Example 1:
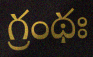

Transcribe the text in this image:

గ్రంథః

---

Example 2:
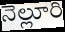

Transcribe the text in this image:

నెల్లూరి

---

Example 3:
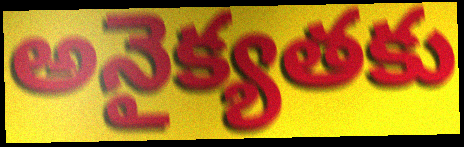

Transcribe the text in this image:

అనైక్యతకు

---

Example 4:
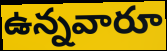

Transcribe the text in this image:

ఉన్నవారూ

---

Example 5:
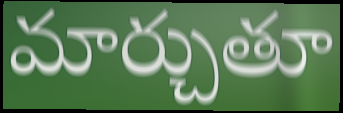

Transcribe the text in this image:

మార్చుతూ